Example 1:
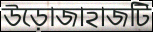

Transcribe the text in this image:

উড়োজাহাজটি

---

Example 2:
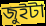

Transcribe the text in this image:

জুইটা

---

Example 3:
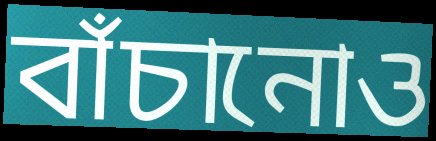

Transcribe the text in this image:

বাঁচানোও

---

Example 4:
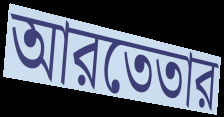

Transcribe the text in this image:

আরতেতার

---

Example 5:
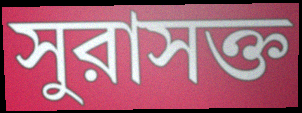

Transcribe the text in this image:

সুরাসক্ত